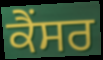
ਕੈਂਸਰ